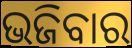
ଭଜିବାର